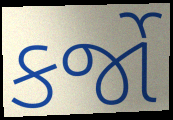
કર્જો